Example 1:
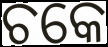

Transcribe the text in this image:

ଚକେ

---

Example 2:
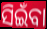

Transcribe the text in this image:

ସିଇଁବା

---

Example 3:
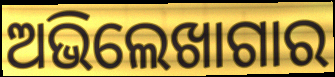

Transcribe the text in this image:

ଅଭିଲେଖାଗାର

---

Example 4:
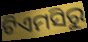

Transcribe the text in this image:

ଟିଏମସିରୁ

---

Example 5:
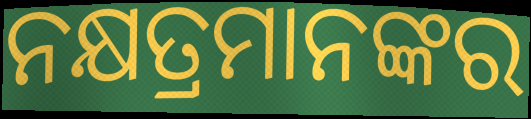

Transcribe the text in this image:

ନକ୍ଷତ୍ରମାନଙ୍କର